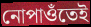
নোপাওঁতেই